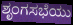
ಶೃಂಗಸಭೆಯು